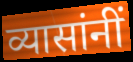
व्यासांनीं